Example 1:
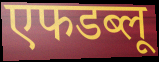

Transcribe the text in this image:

एफडब्लू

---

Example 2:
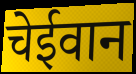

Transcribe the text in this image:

चेईवान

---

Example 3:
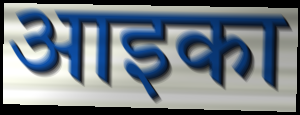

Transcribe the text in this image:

आइका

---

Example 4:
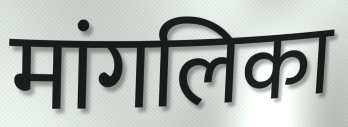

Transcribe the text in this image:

मांगलिका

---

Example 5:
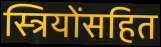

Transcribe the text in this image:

स्त्रियोंसहित